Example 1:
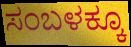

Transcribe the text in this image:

ಸಂಬಳಕ್ಕೂ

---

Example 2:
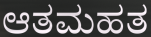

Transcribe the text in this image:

ಆತಮಹತ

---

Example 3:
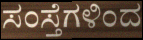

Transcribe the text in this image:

ಸಂಸ್ತೆಗಳಿಂದ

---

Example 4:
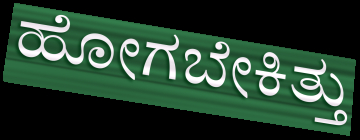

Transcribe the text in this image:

ಹೋಗಬೇಕಿತ್ತು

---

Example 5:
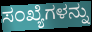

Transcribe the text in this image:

ಸಂಖ್ಯೆಗಳನ್ನು